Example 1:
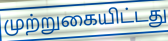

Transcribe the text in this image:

முற்றுகையிட்டது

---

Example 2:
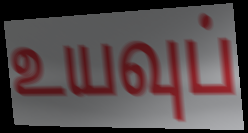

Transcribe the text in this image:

உயவுப்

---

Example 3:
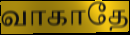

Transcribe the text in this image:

வாகாதே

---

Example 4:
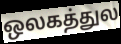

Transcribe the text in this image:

ஒலகத்துல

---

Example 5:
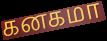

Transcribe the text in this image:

கனகமா